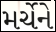
મર્ચેને